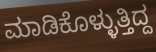
ಮಾಡಿಕೊಳ್ಳುತ್ತಿದ್ದ